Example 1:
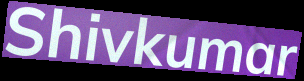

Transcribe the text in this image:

Shivkumar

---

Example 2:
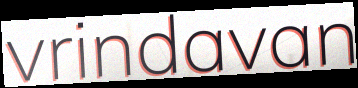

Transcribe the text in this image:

vrindavan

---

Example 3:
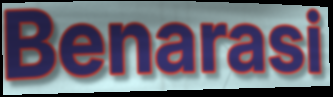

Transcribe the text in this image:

Benarasi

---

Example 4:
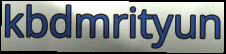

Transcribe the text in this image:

kbdmrityun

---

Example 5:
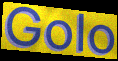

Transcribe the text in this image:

Golo